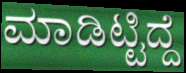
ಮಾಡಿಟ್ಟಿದ್ದೆ